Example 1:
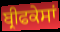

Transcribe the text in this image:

ਬ੍ਰੀਫਕੇਸਾਂ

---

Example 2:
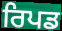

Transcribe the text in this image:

ਰਿਪਡ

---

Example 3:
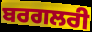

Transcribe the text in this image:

ਬਰਗਲਰੀ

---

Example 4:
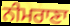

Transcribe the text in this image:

ਨੀਮਰਾਣਾ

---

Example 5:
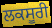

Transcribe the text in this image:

ਲਕਸੂਰੀ